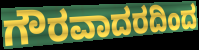
ಗೌರವಾದರದಿಂದ